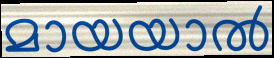
മായയാൽ